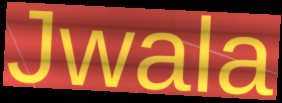
Jwala